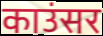
काउंसर